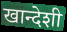
खान्देशी